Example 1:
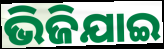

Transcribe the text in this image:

ଭିଜିଯାଇ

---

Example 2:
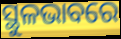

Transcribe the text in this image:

ସ୍ଥୁଳଭାବରେ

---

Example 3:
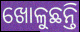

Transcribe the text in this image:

ଖୋଳୁଛନ୍ତି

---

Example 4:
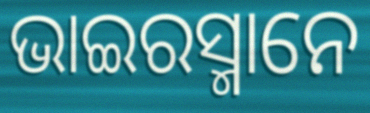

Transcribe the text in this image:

ଭାଇରସ୍ମାନେ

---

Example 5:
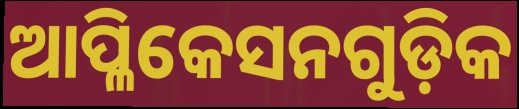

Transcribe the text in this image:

ଆପ୍ଳିକେସନଗୁଡ଼ିକ